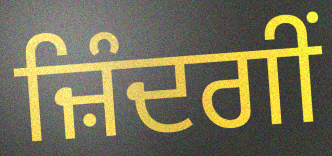
ਜ਼ਿੰਦਗੀਂ